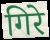
गिरे